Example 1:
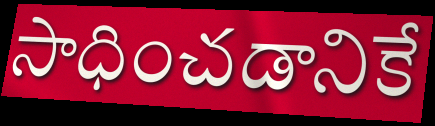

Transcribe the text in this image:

సాధించడానికే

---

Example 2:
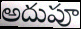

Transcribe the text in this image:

అదుపూ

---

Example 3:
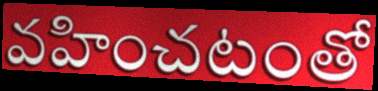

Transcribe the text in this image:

వహించటంతో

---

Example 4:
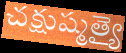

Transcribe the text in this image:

చక్షుష్మత్యై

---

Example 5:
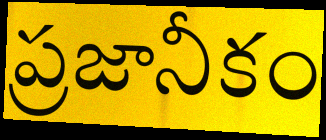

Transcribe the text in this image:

ప్రజానీకం